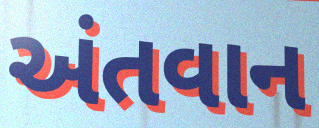
અંતવાન